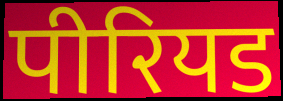
पीरियड